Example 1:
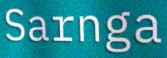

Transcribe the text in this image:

Sarnga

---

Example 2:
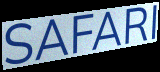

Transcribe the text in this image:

SAFARI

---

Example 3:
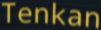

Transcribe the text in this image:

Tenkan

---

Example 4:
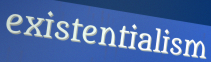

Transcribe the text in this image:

existentialism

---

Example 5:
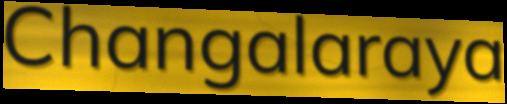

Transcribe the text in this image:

Changalaraya